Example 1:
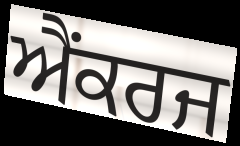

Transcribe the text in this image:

ਐਂਕਰਜ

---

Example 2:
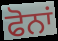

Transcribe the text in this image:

ਫੋਨਾਂ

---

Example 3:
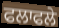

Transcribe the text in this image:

ਫਲਾਫਲੇ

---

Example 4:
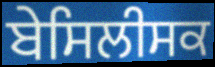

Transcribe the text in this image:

ਬੇਸਿਲੀਸਕ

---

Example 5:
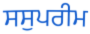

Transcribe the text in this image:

ਸਸੁਪਰੀਮ